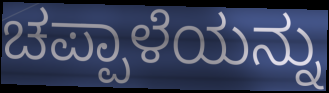
ಚಪ್ಪಾಳೆಯನ್ನು